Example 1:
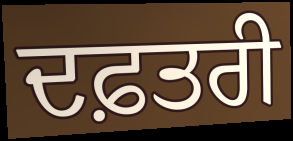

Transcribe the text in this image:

ਦਫ਼ਤਰੀ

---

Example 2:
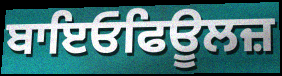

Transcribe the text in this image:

ਬਾਇਓਫਿਊਲਜ਼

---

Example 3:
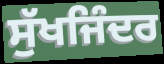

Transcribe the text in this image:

ਸੁੱਖਜਿੰਦਰ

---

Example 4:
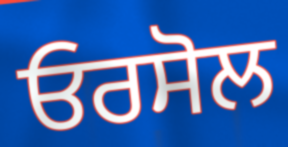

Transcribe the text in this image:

ਓਰਸੋਲ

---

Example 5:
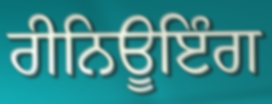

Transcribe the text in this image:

ਰੀਨਿਊਇੰਗ